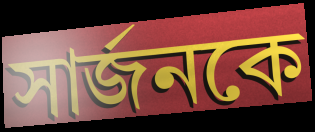
সার্জনকে